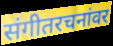
संगीतरचनांवर